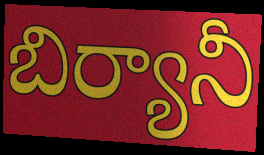
బిర్యానీ